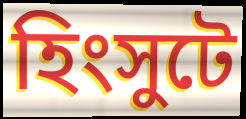
হিংসুটে